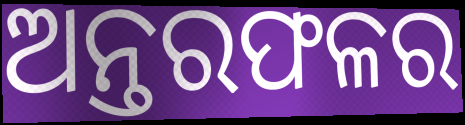
ଅନ୍ତରଫଳର